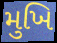
મુખિ